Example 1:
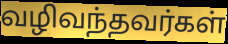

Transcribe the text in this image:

வழிவந்தவர்கள்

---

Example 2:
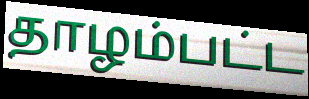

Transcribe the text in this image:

தாழம்பட்ட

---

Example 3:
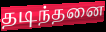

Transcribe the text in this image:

தடிந்தனை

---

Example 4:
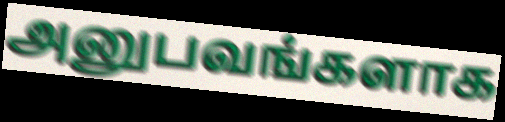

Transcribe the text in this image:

அனுபவங்களாக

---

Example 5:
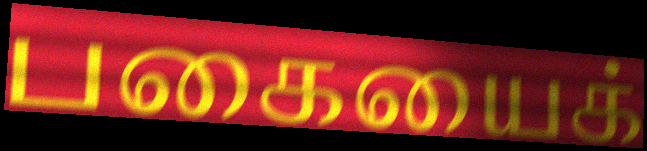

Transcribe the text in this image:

பகையைக்